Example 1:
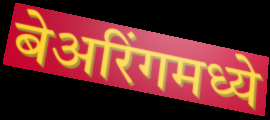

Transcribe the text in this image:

बेअरिंगमध्ये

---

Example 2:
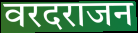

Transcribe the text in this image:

वरदराजन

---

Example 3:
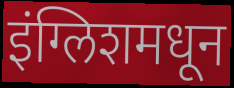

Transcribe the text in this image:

इंग्लिशमधून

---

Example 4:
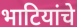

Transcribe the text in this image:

भाटियांचे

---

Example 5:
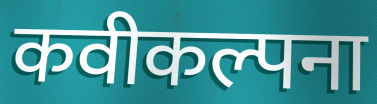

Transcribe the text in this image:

कवीकल्पना